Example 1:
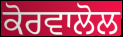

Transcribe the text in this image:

ਕੋਰਵਾਲੋਲ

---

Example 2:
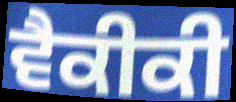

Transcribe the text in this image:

ਵੈਕੀਕੀ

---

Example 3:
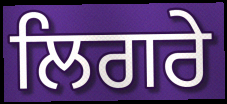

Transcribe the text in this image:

ਲਿਗਰੇ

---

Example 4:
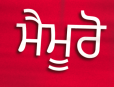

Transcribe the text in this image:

ਮੈਮੂਰੋ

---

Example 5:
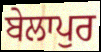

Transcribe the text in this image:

ਬੇਲਾਪੁਰ